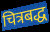
चित्रबद्ध